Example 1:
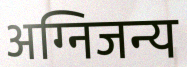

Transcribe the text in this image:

अग्निजन्य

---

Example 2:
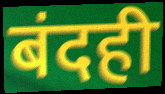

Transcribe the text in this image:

बंदही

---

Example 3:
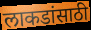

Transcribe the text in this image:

लाकडांसाठी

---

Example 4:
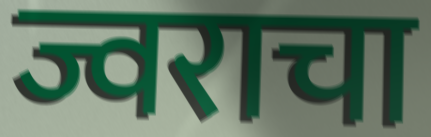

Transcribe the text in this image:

ज्वराचा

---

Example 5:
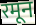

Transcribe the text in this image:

रमून